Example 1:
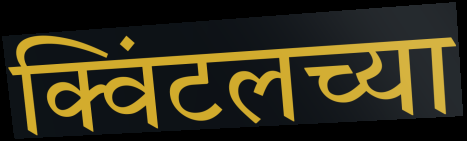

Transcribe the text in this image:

क्विंटलच्या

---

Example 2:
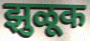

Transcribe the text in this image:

झुळूक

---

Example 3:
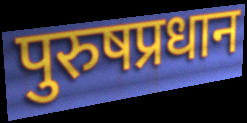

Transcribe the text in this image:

पुरुषप्रधान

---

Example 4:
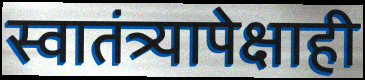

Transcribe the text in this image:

स्वातंत्र्यापेक्षाही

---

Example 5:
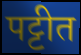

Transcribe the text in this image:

पट्टीत